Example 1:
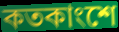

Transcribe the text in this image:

কতকাংশে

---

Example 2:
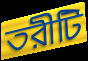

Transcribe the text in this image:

তরীটি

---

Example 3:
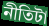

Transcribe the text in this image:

নীতিটা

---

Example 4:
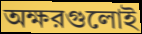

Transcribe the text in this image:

অক্ষরগুলোই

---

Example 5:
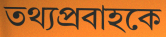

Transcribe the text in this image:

তথ্যপ্রবাহকে